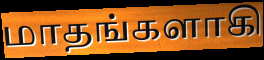
மாதங்களாகி